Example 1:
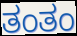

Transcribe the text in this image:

ತಂತಂ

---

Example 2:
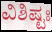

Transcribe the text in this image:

ವಿಶಿಷ್ಟಃ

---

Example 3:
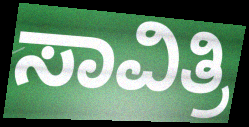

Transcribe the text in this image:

ಸಾವಿತ್ರಿ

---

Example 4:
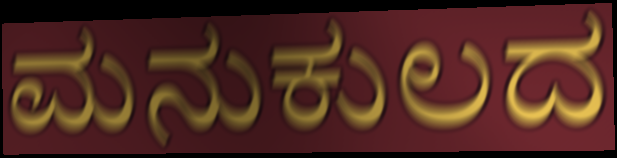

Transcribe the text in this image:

ಮನುಕುಲದ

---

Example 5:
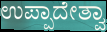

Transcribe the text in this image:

ಉಪ್ಪಾದೇತ್ವಾ